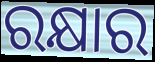
ରକ୍ଷାର